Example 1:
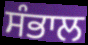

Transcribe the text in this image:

ਸੰਭਾਲ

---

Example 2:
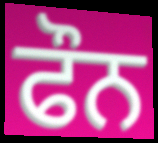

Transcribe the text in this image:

ਫੌਨ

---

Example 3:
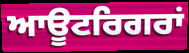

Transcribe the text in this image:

ਆਊਟਰਿਗਰਾਂ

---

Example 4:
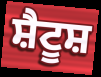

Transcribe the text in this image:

ਸ਼ੈਟੂਸ਼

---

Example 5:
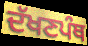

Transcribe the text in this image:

ਦੱਖਣਪੰਥ